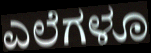
ಎಲೆಗಳೂ